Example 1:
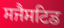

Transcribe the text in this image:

ਸਜੈਸਟਿਡ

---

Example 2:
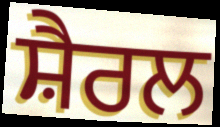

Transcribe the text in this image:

ਸ਼ੈਰਲ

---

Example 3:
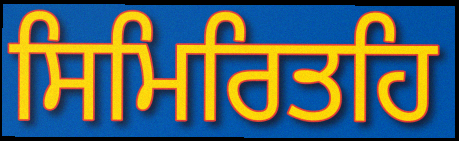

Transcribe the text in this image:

ਸਿਮਿਰਿਤਹਿ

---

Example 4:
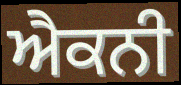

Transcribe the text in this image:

ਐਕਨੀ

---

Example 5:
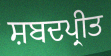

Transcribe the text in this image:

ਸ਼ਬਦਪ੍ਰੀਤ